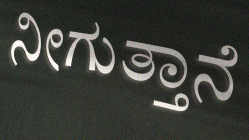
ನೀಗುತ್ತಾನೆ